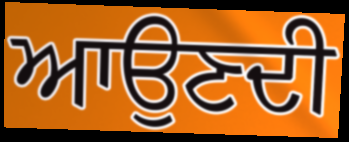
ਆਉਣਦੀ